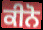
ਕੀਨੋ